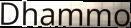
Dhammo